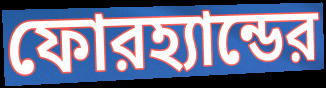
ফোরহ্যান্ডের